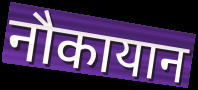
नौकायान